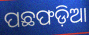
ପଛଫଡ଼ିଆ